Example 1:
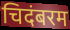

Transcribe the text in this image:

चिदंबरम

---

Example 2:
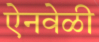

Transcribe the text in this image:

ऐनवेळी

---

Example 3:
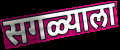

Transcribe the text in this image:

सगळ्याला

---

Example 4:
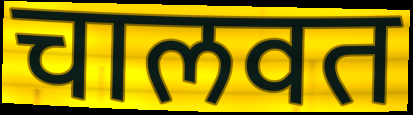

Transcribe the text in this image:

चालवत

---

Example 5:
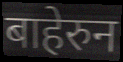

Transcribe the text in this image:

बाहेरुन